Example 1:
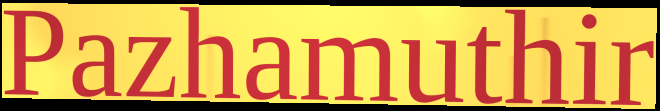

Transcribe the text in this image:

Pazhamuthir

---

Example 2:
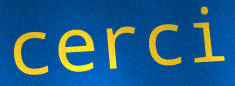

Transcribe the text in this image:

cerci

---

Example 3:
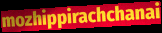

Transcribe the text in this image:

mozhippirachchanai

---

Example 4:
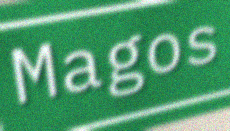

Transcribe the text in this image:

Magos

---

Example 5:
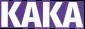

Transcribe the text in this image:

KAKA